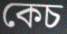
কেচ